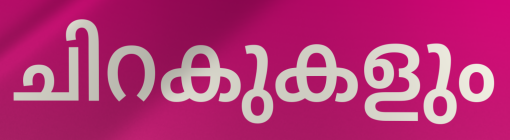
ചിറകുകളും